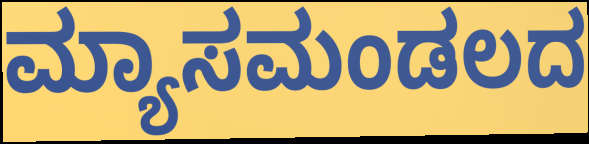
ಮ್ಯಾಸಮಂಡಲದ